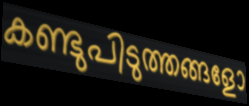
കണ്ടുപിടുത്തങ്ങളോ